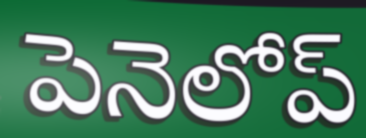
పెనెలోప్